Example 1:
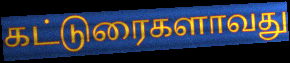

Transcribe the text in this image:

கட்டுரைகளாவது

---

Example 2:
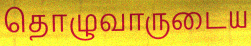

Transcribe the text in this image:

தொழுவாருடைய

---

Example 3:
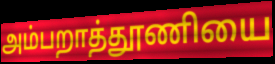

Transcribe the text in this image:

அம்பறாத்தூணியை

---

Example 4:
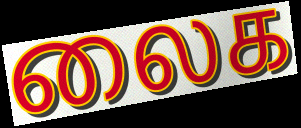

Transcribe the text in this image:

லைக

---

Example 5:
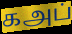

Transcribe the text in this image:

கஅப்